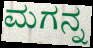
ಮಗನ್ನ